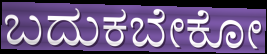
ಬದುಕಬೇಕೋ